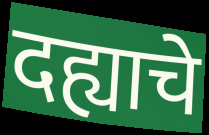
दह्याचे